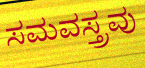
ಸಮವಸ್ತ್ರವು